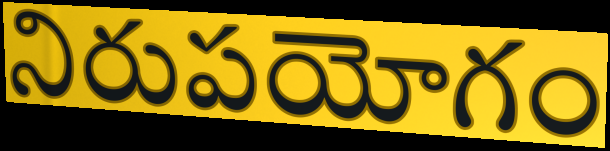
నిరుపయోగం